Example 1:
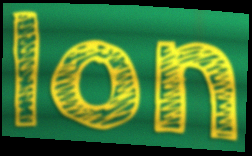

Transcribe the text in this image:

Ion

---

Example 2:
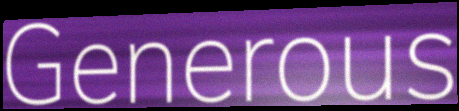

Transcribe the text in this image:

Generous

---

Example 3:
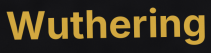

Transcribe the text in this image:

Wuthering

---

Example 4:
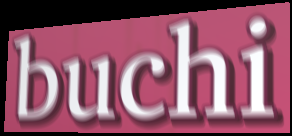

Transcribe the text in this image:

buchi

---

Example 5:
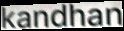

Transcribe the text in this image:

kandhan